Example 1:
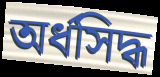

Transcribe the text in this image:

অর্ধসিদ্ধ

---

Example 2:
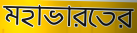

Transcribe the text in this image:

মহাভারতের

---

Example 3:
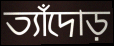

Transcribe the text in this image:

ত্যাঁদোড়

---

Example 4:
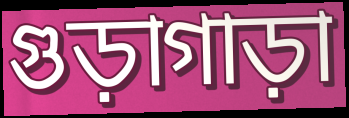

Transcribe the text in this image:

গুড়াগাড়া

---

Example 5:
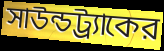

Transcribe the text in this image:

সাউন্ডট্র্যাকের